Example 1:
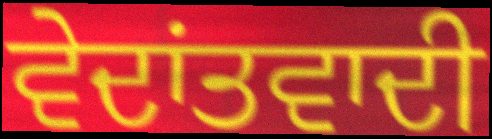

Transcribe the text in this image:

ਵੇਦਾਂਤਵਾਦੀ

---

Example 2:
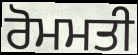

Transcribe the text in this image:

ਰੋਮਮਤੀ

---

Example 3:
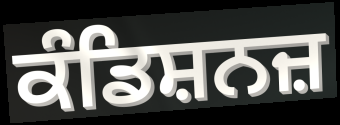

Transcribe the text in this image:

ਕੰਡਿਸ਼ਨਜ਼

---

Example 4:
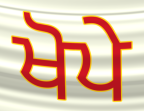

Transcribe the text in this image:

ਖੋਪੇ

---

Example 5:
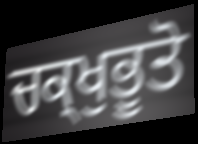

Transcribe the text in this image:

ਚਕ੍ਖੁਭੂਤੋ